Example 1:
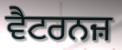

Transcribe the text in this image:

ਵੈਟਰਨਜ਼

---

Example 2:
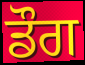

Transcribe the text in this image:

ਡੌਗ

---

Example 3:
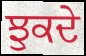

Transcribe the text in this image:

ਝੁਕਦੇ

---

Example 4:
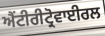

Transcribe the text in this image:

ਐਂਟੀਰੀਟ੍ਰੋਵਾਈਰਲ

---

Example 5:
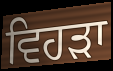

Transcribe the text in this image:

ਵਿਹੜਾ